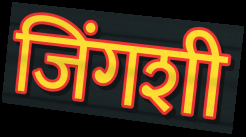
जिंगशी